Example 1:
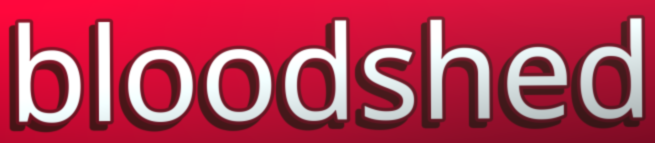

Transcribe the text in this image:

bloodshed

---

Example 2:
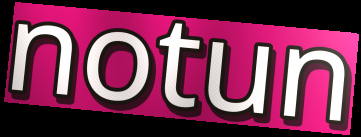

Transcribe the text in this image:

notun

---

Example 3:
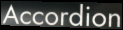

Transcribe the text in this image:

Accordion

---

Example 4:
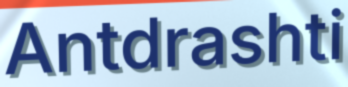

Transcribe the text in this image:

Antdrashti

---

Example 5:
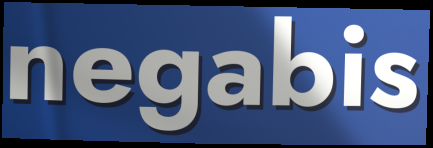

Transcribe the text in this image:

negabis